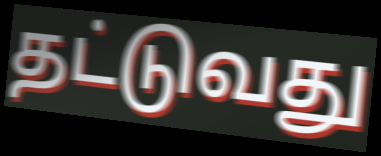
தட்டுவது